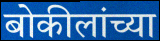
बोकीलांच्या